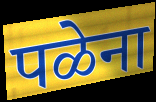
पळेना